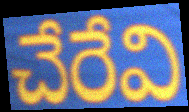
చేరేవి